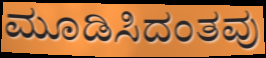
ಮೂಡಿಸಿದಂತವು